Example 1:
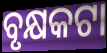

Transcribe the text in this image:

ବୃକ୍ଷକଟା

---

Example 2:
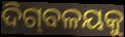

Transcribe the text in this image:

ଦିଗ୍‌ବଳୟକୁ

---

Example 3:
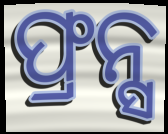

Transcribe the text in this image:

ଫ୍ରନ୍ସ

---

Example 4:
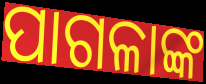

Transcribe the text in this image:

ପାଗଳାଙ୍କ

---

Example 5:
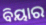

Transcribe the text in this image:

ବିୟାର